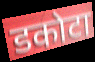
डकोटा